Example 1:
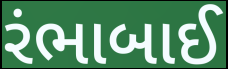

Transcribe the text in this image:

રંભાબાઈ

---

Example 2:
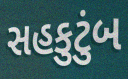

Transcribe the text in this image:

સહકુટુંબ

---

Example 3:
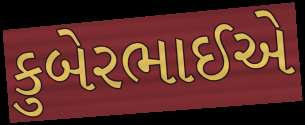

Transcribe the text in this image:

કુબેરભાઈએ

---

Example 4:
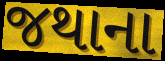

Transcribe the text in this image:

જથાના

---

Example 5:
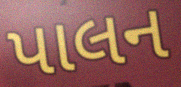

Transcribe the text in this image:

પાલન